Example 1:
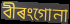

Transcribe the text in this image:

বীৰংগোনা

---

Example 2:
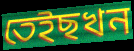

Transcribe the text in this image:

তেইছখন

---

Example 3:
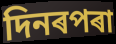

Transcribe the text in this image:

দিনৰপৰা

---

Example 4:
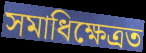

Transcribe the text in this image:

সমাধিক্ষেত্ৰত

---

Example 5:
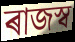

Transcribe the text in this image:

ৰাজস্ব